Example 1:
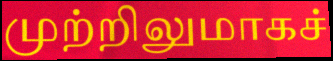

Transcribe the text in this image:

முற்றிலுமாகச்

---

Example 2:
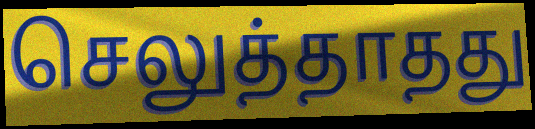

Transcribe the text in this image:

செலுத்தாதது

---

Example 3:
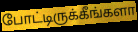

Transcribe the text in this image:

போட்டிருக்கீங்களா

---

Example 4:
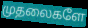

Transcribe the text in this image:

முதலைகளே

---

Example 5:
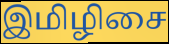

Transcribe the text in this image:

இமிழிசை